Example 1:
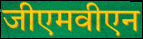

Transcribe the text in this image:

जीएमवीएन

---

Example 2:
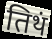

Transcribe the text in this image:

तिथं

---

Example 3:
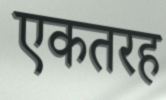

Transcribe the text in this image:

एकतरह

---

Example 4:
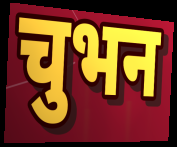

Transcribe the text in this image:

चुभन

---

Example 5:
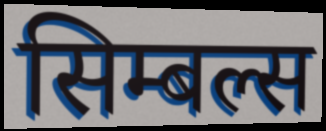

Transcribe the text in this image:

सिम्बल्स